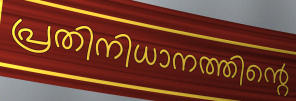
പ്രതിനിധാനത്തിന്റെ